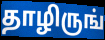
தாழிருங்